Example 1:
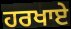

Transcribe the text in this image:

ਹਰਖਾਏ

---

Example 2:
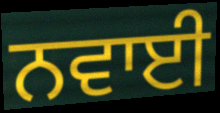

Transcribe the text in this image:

ਨਵਾਈ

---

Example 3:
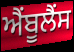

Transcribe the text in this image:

ਐੰਬੂਲੈਂਸ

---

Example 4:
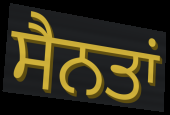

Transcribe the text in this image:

ਸੈਨਤਾਂ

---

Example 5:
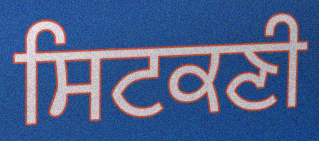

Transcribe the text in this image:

ਸਿਟਕਣੀ